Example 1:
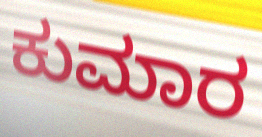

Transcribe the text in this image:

ಕುಮಾರ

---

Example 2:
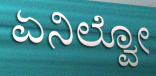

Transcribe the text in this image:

ಏನಿಲ್ವೋ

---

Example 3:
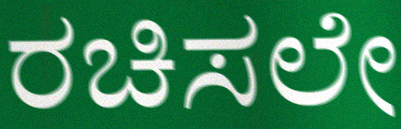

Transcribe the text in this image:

ರಚಿಸಲೇ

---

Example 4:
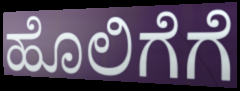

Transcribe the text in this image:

ಹೊಲಿಗೆಗೆ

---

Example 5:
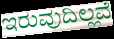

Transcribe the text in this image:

ಇರುವುದಿಲ್ಲವೆ